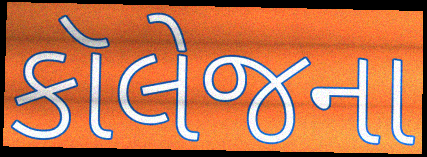
કૉલેજના